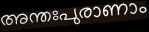
അന്തഃപുരാണാം